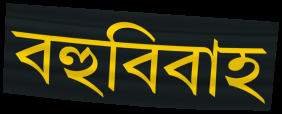
বহুবিবাহ